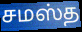
சமஸ்த